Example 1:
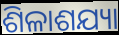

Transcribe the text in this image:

ଶିଳାଶଯ୍ୟା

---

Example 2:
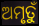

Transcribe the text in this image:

ଅମୃତୁଁ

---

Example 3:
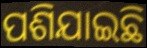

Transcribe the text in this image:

ପଶିଯାଇଛି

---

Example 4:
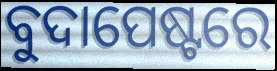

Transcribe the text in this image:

ବୁଦାପେଷ୍ଟରେ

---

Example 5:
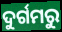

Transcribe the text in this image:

ଦୁର୍ଗମରୁ